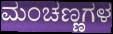
ಮಂಚಣ್ಣಗಳ